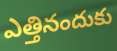
ఎత్తినందుకు